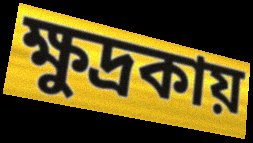
ক্ষুদ্রকায়